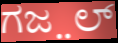
ಗಜ಼ಲ್